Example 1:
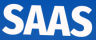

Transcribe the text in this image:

SAAS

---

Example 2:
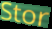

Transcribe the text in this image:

Stor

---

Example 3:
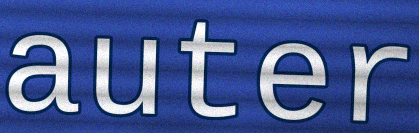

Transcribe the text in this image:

auter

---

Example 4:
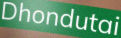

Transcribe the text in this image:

Dhondutai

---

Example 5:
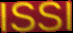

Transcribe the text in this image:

ISSI